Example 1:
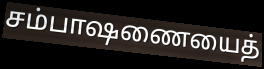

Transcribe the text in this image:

சம்பாஷணையைத்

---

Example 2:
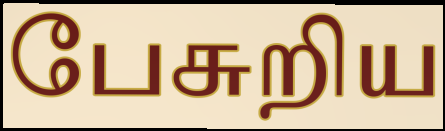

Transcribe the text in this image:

பேசுறிய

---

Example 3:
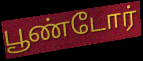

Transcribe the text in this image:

பூண்டோர்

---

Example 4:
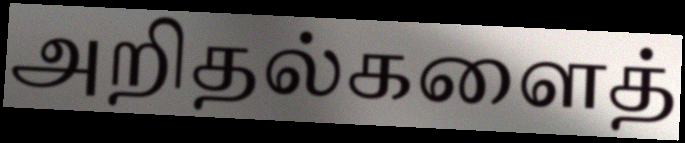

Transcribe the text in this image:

அறிதல்களைத்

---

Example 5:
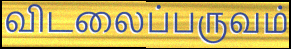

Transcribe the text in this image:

விடலைப்பருவம்